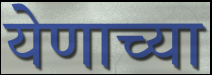
येणाच्या